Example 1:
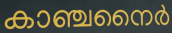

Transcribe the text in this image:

കാഞ്ചനൈർ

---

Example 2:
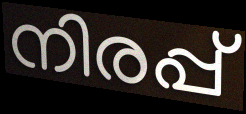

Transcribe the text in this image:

നിരപ്പ്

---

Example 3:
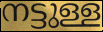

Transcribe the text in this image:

നട്ടുള്ള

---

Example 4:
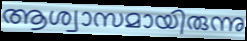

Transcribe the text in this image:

ആശ്വാസമായിരുന്നു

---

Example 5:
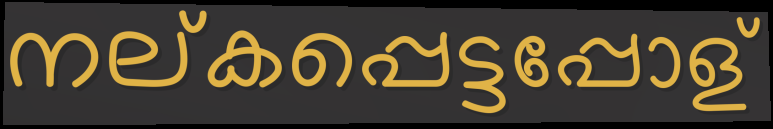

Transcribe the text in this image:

നല്കപ്പെട്ടപ്പോള്